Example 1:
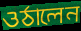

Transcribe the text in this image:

ওঠালেন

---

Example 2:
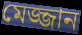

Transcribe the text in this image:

মেজ্জান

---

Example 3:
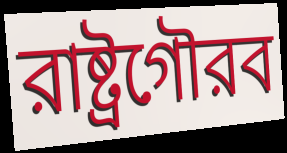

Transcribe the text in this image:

রাষ্ট্রগৌরব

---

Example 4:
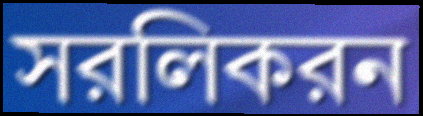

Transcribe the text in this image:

সরলিকরন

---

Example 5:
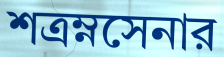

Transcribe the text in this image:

শত্রম্নসেনার